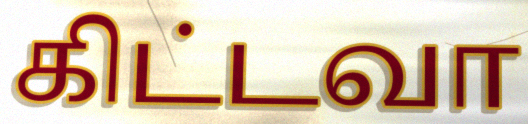
கிட்டவா